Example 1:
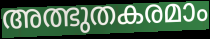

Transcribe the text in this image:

അത്ഭുതകരമാം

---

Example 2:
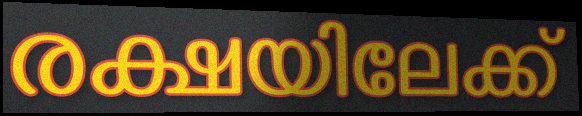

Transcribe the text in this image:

രക്ഷയിലേക്ക്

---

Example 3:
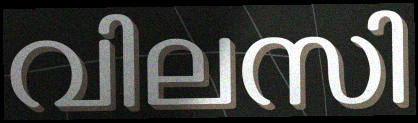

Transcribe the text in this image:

വിലസി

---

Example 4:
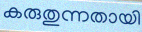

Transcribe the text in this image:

കരുതുന്നതായി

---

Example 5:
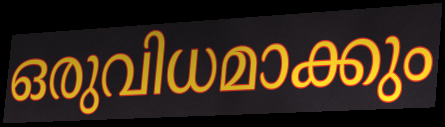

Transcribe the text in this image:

ഒരുവിധമാക്കും